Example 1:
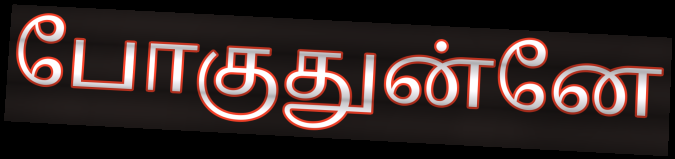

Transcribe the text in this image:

போகுதுன்னே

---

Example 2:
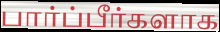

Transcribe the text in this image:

பார்ப்பீர்களாக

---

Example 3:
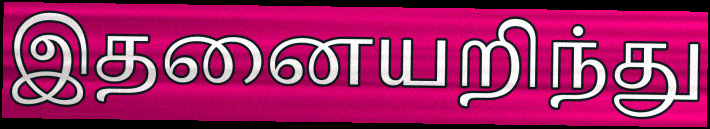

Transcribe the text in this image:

இதனையறிந்து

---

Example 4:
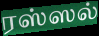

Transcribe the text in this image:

ரஸ்ஸல்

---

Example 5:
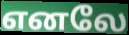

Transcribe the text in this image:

எனலே